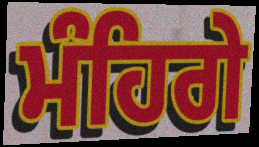
ਮੰਹਿਗੇ